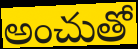
అంచుతో